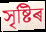
সৃষ্টিৰ